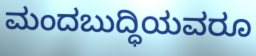
ಮಂದಬುದ್ಧಿಯವರೂ